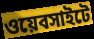
ওয়েবসাইটে